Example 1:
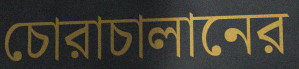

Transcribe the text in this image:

চোরাচালানের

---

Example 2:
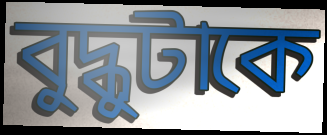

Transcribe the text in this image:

বুদ্ধুটাকে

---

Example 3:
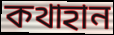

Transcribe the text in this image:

কথাহান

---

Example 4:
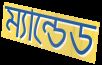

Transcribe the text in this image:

ম্যান্ডেড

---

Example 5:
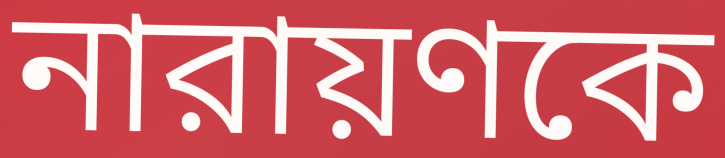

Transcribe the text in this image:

নারায়ণকে